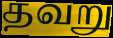
தவறு